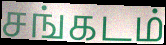
சங்கடம்